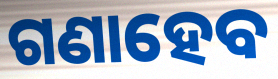
ଗଣାହେବ